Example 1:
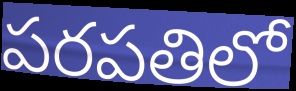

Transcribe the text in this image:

పరపతిలో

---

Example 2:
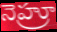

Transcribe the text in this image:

నెహ్రూ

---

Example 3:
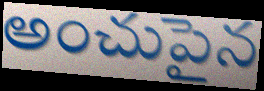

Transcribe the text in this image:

అంచుపైన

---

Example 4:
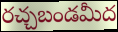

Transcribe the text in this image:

రచ్చబండమీద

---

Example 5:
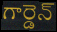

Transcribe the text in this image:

గార్డెన్